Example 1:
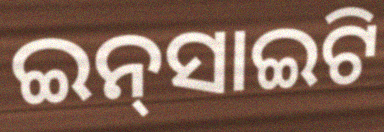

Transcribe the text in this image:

ଇନ୍‌ସାଇଟି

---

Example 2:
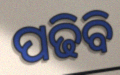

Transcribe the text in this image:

ପଢିବି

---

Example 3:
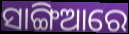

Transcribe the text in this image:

ସାଙ୍ଗିଆରେ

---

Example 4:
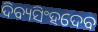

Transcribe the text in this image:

ଦିବ୍ୟସିଂହଦେବ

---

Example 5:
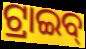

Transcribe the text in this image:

ଟ୍ରାଇବ୍